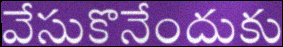
వేసుకొనేందుకు